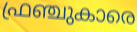
ഫ്രഞ്ചുകാരെ